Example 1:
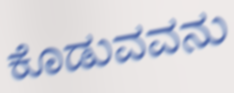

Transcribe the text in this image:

ಕೊಡುವವನು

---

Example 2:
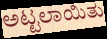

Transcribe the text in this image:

ಅಟ್ಟಲಾಯಿತು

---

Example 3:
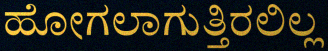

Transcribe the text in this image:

ಹೋಗಲಾಗುತ್ತಿರಲಿಲ್ಲ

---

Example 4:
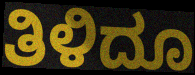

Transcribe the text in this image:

ತಿಳಿದೂ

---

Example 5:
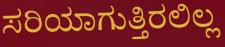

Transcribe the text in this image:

ಸರಿಯಾಗುತ್ತಿರಲಿಲ್ಲ